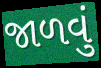
જાળવું